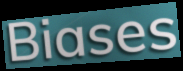
Biases